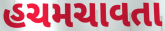
હચમચાવતા